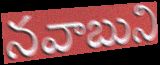
నవాబుని